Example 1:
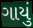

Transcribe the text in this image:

ગાયું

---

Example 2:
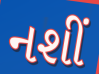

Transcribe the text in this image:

નશીં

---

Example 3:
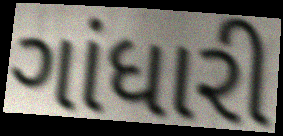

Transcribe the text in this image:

ગાંધારી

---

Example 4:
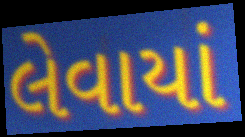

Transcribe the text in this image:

લેવાયાં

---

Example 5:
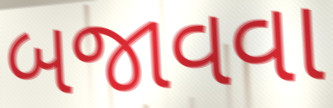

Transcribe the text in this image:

બજાવવા